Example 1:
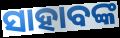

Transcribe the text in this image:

ସାହାବଙ୍କ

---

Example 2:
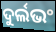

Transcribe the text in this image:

ଦୁର୍ଲଭଂ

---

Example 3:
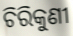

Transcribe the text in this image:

ଚିରିକୁଣୀ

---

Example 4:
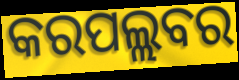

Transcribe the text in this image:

କରପଲ୍ଲବର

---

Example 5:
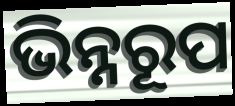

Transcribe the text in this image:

ଭିନ୍ନରୂପ